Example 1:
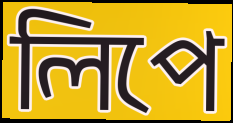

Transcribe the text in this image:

লিপে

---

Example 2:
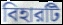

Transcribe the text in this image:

বিহারটি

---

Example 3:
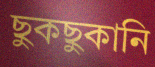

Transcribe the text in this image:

ছুকছুকানি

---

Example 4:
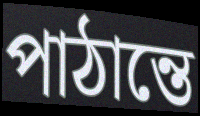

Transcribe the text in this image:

পাঠান্তে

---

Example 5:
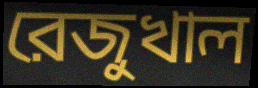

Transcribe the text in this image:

রেজুখাল